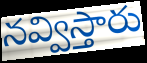
నవ్విస్తారు